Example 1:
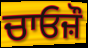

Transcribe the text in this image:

ਚਾਓਜ਼ੌ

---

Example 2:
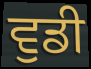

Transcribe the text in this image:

ਵੁਡੀ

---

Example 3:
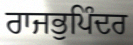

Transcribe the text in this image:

ਰਾਜਭੁਪਿੰਦਰ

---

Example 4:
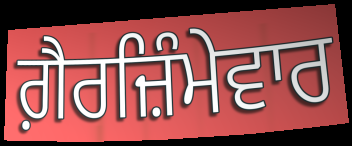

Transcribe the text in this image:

ਗ਼ੈਰਜ਼ਿੰਮੇਵਾਰ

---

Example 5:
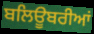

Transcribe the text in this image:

ਬਲਿਊਬਰੀਆਂ